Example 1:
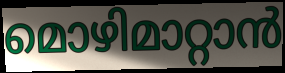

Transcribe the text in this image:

മൊഴിമാറ്റാൻ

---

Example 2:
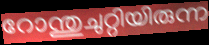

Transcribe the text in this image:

റോന്തുചുറ്റിയിരുന്ന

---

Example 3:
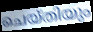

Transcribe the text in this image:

ചെയ്തിയും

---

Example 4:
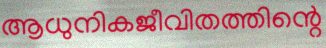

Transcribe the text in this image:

ആധുനികജീവിതത്തിന്റെ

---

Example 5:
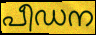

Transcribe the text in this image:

പീഡന